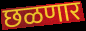
छळणार